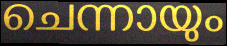
ചെന്നായും